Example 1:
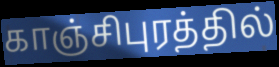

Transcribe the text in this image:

காஞ்சிபுரத்தில்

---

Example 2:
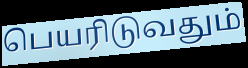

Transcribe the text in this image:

பெயரிடுவதும்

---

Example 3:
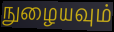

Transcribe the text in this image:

நுழையவும்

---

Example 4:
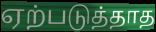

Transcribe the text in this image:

ஏற்படுத்தாத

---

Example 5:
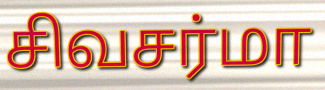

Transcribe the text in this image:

சிவசர்மா